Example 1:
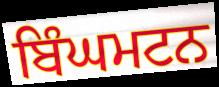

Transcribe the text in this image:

ਬਿੰਘਮਟਨ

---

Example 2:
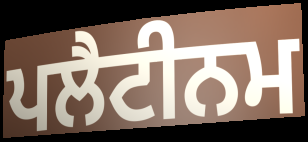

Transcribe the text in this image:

ਪਲੈਟੀਨਮ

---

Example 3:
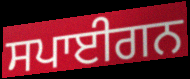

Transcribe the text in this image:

ਸਪਾਈਗਨ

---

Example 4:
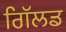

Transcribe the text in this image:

ਗਿੱਲਡ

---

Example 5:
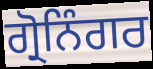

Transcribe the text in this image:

ਗ੍ਰੋਨਿੰਗਰ